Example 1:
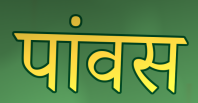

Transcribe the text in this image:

पांवस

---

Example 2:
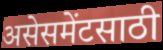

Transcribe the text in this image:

असेसमेंटसाठी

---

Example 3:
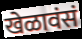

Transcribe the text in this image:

खेळावंसं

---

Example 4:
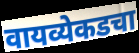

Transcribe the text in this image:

वायव्येकडचा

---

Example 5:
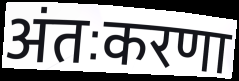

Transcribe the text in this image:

अंतःकरणा